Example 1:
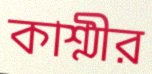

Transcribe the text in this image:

কাশ্মীর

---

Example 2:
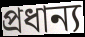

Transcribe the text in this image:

প্রধান্য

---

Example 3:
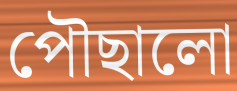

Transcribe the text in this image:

পৌছালো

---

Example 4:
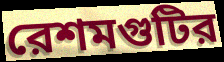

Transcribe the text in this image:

রেশমগুটির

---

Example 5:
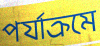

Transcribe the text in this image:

পর্যাক্রমে